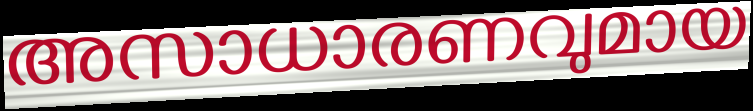
അസാധാരണവുമായ